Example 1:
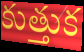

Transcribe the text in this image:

కుత్తుక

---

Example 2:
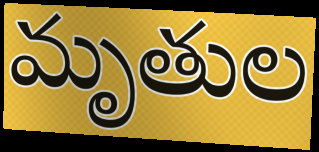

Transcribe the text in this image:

మృతుల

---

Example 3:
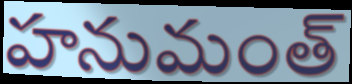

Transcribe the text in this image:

హనుమంత్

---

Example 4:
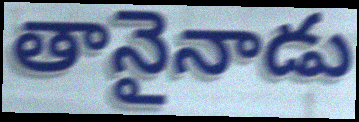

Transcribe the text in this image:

తానైనాడు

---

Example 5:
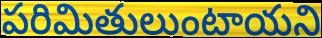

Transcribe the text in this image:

పరిమితులుంటాయని